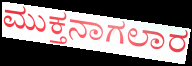
ಮುಕ್ತನಾಗಲಾರ